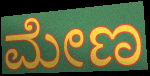
ಮೇಣ